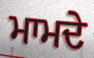
ਮਾਮਦੇ